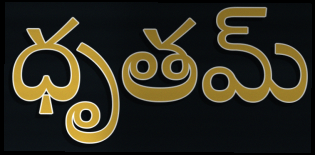
ధృతమ్